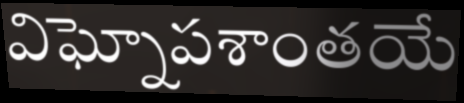
విఘ్నోపశాంతయే